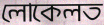
লোকেলত